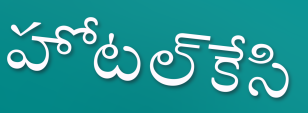
హోటల్‌కేసి